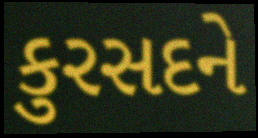
કુરસદને